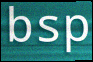
bsp